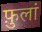
फ़ुलां